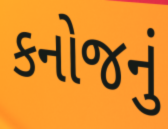
કનોજનું